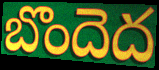
బొందెద